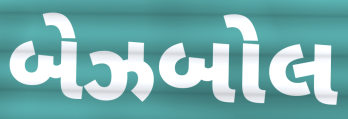
બેઝબોલ